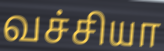
வச்சியா